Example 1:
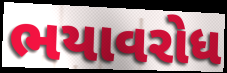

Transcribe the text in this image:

ભયાવરોધ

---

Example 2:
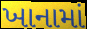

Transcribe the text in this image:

ખાનામાં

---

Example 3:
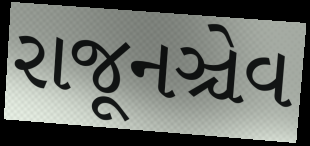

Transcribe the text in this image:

રાજૂનઞ્ચેવ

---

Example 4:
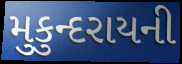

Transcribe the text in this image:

મુકુન્દરાયની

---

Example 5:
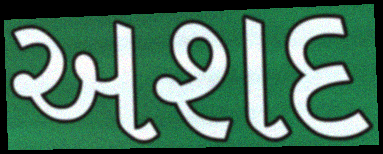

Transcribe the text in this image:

અશદ